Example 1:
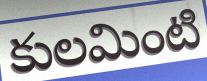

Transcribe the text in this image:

కులమింటి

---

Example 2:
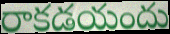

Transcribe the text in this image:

రాకడయందు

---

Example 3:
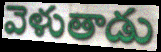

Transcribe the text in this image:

వెళుతాడు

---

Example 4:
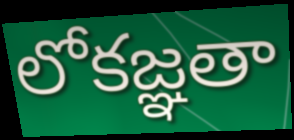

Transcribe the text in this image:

లోకజ్ఞతా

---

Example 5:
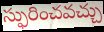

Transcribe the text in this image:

స్ఫురించవచ్చు